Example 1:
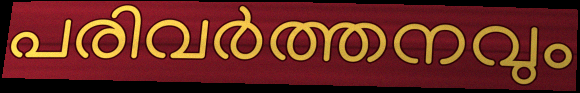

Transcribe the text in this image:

പരിവർത്തനവും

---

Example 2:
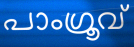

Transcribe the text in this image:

പാംഗ്രൂവ്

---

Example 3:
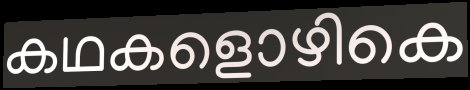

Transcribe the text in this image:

കഥകളൊഴികെ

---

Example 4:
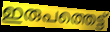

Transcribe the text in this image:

ഇരുപത്തെട്ട്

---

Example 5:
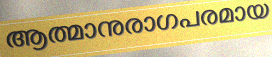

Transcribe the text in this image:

ആത്മാനുരാഗപരമായ